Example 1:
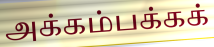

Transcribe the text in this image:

அக்கம்பக்கக்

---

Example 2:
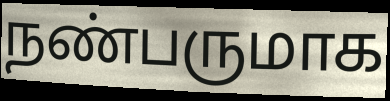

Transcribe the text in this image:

நண்பருமாக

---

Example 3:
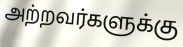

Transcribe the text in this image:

அற்றவர்களுக்கு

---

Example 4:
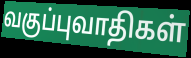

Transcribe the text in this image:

வகுப்புவாதிகள்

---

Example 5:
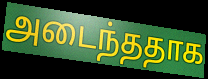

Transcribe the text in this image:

அடைந்ததாக